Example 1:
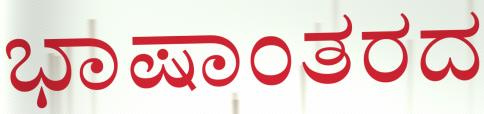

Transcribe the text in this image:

ಭಾಷಾಂತರದ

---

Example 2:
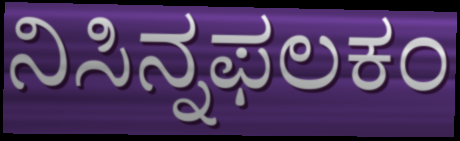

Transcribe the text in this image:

ನಿಸಿನ್ನಫಲಕಂ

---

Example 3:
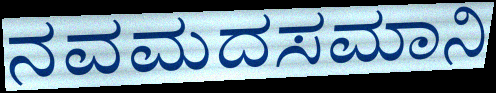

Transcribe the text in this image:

ನವಮದಸಮಾನಿ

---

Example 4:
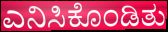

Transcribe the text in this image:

ಎನಿಸಿಕೊಂಡಿತು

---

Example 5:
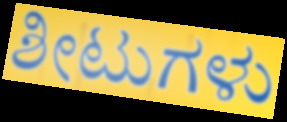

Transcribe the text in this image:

ಶೀಟುಗಳು